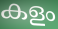
കളം